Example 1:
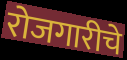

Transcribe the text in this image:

रोजगारीचे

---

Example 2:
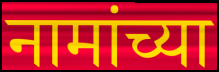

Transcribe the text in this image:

नामांच्या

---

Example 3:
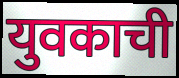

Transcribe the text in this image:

युवकाची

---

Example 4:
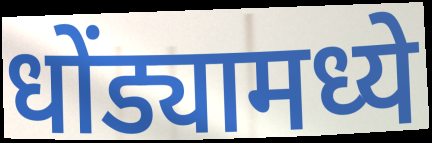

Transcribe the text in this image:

धोंड्यामध्ये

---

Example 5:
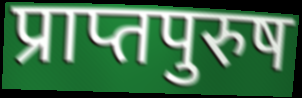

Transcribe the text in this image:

प्राप्तपुरुष